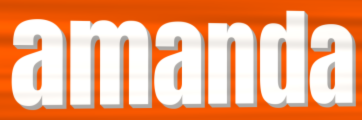
amanda